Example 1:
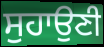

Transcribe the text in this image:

ਸੁਹਾਉਣੀ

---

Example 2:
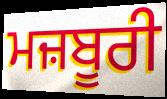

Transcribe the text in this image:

ਮਜ਼ਬੂਰੀ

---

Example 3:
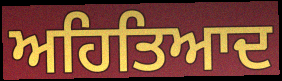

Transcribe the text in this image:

ਅਹਿਤਿਆਦ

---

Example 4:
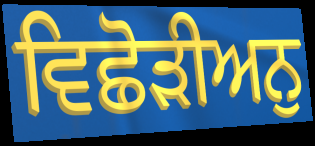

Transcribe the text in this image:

ਵਿਛੋੜੀਅਨੁ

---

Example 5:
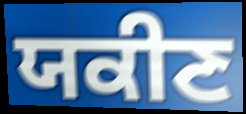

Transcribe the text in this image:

ਯਕੀਣ